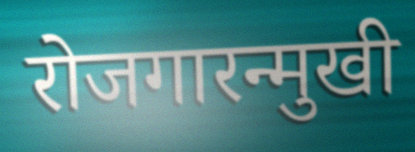
रोजगारन्मुखी